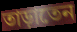
তাড়াতেন